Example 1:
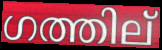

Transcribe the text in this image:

ഗത്തില്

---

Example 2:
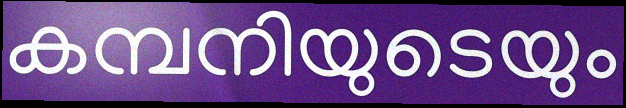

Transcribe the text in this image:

കമ്പനിയുടെയും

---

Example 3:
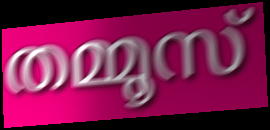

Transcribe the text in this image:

തമ്മൂസ്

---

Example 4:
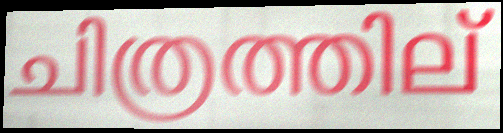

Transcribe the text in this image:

ചിത്രത്തില്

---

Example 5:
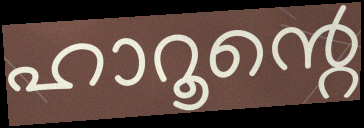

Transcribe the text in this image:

ഹാറൂന്റെ